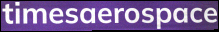
timesaerospace